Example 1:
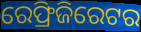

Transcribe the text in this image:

ରେଫ୍ରିଜିରେଟର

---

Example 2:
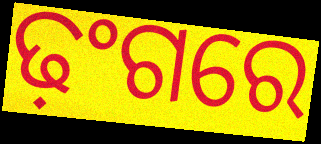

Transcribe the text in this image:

ଢ଼ଂଗରେ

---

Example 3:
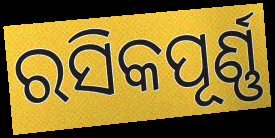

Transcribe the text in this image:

ରସିକପୂର୍ଣ୍ଣ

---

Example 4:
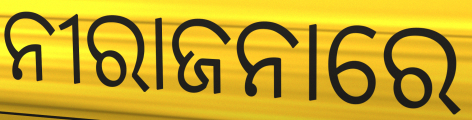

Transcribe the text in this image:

ନୀରାଜନାରେ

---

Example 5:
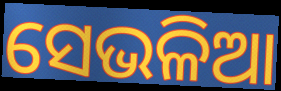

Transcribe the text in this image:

ସେଭଳିଆ